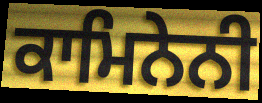
ਕਾਮਿਨੇਨੀ